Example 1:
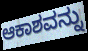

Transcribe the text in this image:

ಆಕಾಶವನ್ನು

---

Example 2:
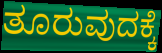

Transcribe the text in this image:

ತೂರುವುದಕ್ಕೆ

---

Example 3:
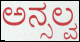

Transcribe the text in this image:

ಅನ್ಸಲ್ವ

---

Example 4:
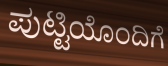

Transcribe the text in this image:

ಪುಟ್ಟಿಯೊಂದಿಗೆ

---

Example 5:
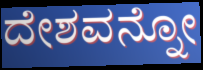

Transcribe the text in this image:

ದೇಶವನ್ನೋ